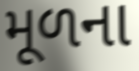
મૂળના